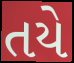
તયે